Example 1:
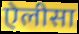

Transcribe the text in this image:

ऐलीसा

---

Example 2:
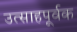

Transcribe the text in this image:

उत्साहपूर्वक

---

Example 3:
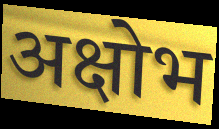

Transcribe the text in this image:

अक्षोभ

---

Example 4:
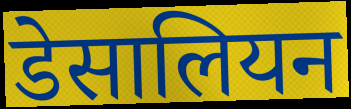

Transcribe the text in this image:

डेसालियन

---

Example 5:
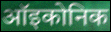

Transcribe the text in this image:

ऑइकोनिक